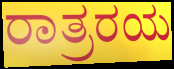
ರಾತ್ರರಯ